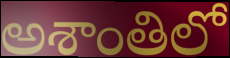
అశాంతిలో